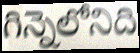
గిన్నెలోనిది